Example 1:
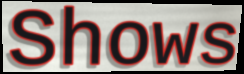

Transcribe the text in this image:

Shows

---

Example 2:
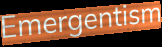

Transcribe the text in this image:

Emergentism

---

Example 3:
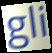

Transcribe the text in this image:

gli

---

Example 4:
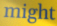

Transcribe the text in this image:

might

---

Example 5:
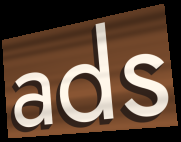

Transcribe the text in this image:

ads